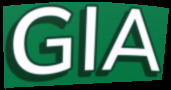
GIA